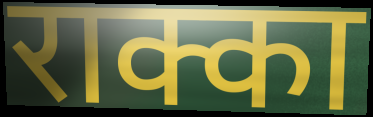
राक्का